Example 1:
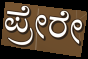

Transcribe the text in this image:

ಪ್ರೇರೇ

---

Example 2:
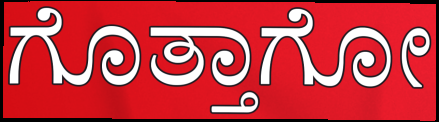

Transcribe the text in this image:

ಗೊತ್ತಾಗೋ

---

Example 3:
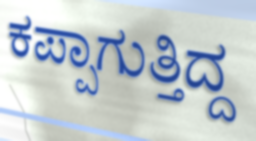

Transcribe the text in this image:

ಕಪ್ಪಾಗುತ್ತಿದ್ದ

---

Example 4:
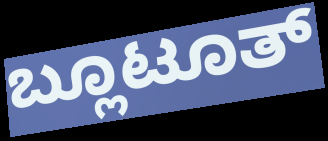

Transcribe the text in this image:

ಬ್ಲೂಟೂತ್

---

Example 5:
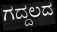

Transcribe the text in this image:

ಗದ್ದಲದ